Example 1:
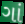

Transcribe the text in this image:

ગાં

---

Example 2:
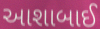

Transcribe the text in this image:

આશાબાઈ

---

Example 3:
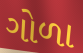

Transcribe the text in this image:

ગોળા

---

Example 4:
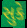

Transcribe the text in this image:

સુકે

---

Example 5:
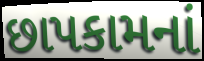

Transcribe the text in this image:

છાપકામનાં